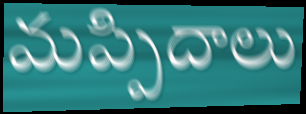
మప్పిదాలు